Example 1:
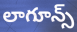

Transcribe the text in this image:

లాగూన్స్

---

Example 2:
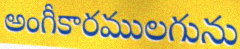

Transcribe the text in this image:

అంగీకారములగును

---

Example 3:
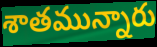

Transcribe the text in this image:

శాతమున్నారు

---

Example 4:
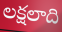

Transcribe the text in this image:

లక్షలాది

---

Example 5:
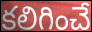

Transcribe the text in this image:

కలిగించే